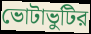
ভোটাভুটির